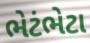
ભેટંભેટા